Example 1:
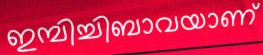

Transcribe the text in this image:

ഇമ്പിച്ചിബാവയാണ്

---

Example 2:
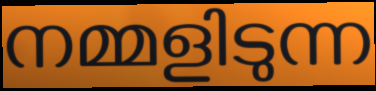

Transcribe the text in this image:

നമ്മളിടുന്ന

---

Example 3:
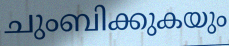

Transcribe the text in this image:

ചുംബിക്കുകയും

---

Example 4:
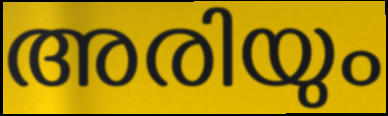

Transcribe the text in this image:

അരിയും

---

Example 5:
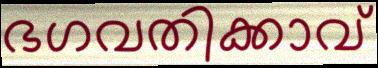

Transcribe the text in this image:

ഭഗവതിക്കാവ്